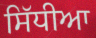
ਸਿੱਧੀਆ